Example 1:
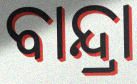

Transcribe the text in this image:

ବାନ୍ଦ୍ରା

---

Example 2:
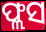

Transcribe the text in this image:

ଫ୍ଲସ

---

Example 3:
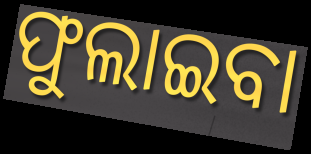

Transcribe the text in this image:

ଫୁଲାଇବା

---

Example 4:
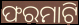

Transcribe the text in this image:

ଫରମାଟି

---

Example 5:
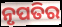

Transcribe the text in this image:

ନୃପତିର